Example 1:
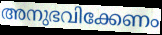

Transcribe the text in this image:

അനുഭവിക്കേണം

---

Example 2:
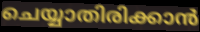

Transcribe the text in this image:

ചെയ്യാതിരിക്കാൻ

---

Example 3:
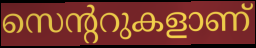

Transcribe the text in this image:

സെന്ററുകളാണ്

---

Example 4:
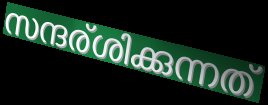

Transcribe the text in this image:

സന്ദര്ശിക്കുന്നത്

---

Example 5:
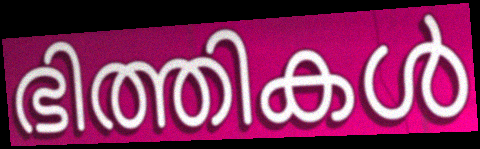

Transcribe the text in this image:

ഭിത്തികൾ